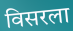
विसरला